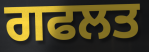
ਗਫਲਤ